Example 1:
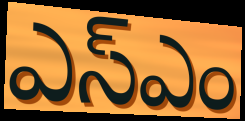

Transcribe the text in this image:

ఎస్ఎం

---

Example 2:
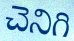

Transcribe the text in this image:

చెనిగి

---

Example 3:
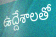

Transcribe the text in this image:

ఉద్దేశాలతో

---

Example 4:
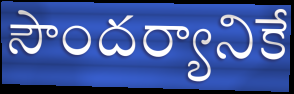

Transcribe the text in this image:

సౌందర్యానికే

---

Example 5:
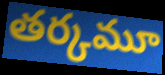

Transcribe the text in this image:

తర్కమూ